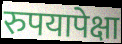
रुपयापेक्षा